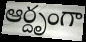
ఆర్దృంగా